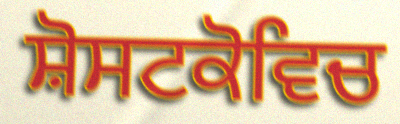
ਸ਼ੋਸਟਕੋਵਿਚ